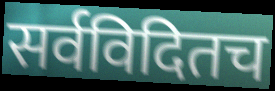
सर्वविदितच